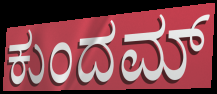
ಕುಂದಮ್